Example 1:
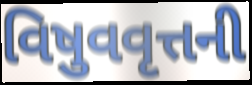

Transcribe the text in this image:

વિષુવવૃત્તની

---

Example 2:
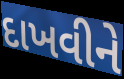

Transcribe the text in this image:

દાખવીને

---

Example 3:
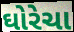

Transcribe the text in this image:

ઘોરેચા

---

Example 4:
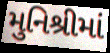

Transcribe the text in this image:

મુનિશ્રીમાં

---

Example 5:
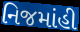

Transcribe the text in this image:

નિજમાંહી